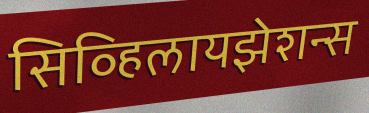
सिव्हिलायझेशन्स